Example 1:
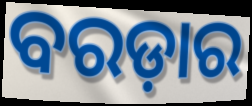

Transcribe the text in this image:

ବରଡ଼ାର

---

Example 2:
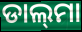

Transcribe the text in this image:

ଡାଲ୍‍ମା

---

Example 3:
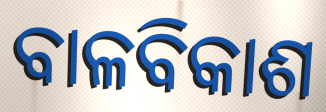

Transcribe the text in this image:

ବାଳବିକାଶ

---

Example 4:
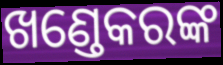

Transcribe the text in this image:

ଖଣ୍ଡେକରଙ୍କ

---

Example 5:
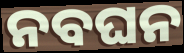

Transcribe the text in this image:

ନବଘନ